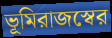
ভূমিরাজস্বের